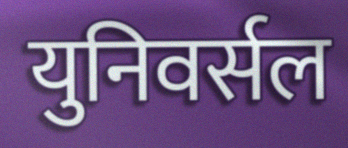
युनिवर्सल